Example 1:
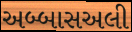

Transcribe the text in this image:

અબ્બાસઅલી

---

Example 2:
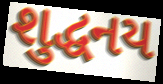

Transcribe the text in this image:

શુદ્ધનય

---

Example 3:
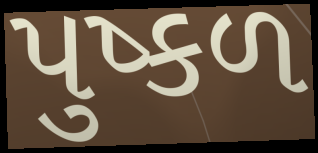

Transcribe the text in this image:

પુષ્કળ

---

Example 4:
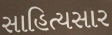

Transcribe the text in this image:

સાહિત્યસાર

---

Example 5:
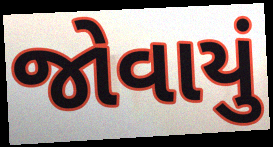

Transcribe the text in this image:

જોવાયું